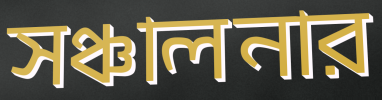
সঞ্চালনার